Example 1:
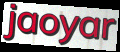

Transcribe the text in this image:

jaoyar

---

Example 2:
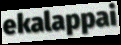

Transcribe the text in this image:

ekalappai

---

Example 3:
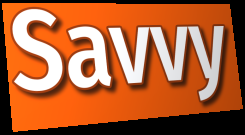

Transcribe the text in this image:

Savvy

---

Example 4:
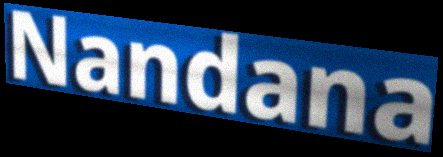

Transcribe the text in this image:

Nandana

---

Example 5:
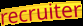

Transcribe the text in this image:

recruiter